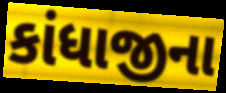
કાંધાજીના